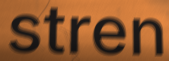
stren